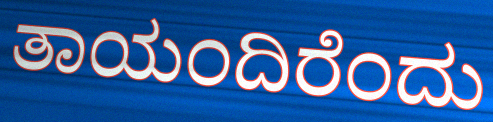
ತಾಯಂದಿರೆಂದು